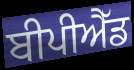
ਬੀਪੀਐੱਡ